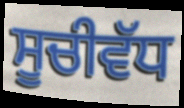
ਸੂਚੀਵੱਧ